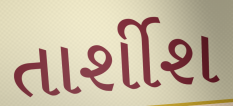
તાર્શીશ